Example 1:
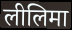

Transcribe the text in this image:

लीलिमा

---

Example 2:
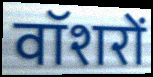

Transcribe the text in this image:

वॉशरों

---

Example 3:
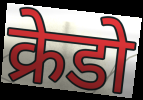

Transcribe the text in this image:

क्रेडो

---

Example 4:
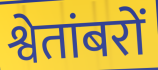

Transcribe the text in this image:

श्वेतांबरों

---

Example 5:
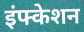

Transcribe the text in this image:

इंफ्केशन